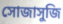
সোজাসুজি